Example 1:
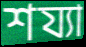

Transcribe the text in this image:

শয্যা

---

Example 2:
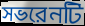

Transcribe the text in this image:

সভরেনটি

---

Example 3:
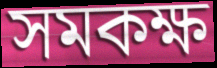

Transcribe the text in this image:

সমকক্ষ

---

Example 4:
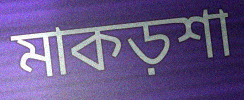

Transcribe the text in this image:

মাকড়শা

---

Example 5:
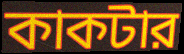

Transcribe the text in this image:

কাকটার